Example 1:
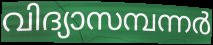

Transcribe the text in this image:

വിദ്യാസമ്പന്നർ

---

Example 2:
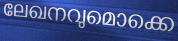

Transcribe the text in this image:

ലേഖനവുമൊക്കെ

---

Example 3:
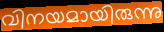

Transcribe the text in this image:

വിനയമായിരുന്നു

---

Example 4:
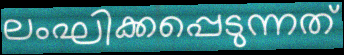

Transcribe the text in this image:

ലംഘിക്കപ്പെടുന്നത്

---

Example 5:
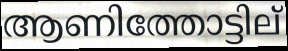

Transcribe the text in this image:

ആണിത്തോട്ടില്